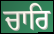
ਚਾਰਿ